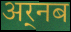
अर्नब